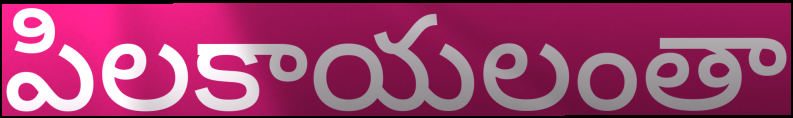
పిలకాయలంతా